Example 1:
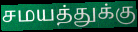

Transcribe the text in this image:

சமயத்துக்கு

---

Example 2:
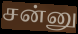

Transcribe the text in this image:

சன்னு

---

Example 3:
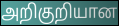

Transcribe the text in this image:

அறிகுறியான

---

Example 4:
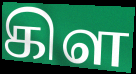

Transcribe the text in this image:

கிள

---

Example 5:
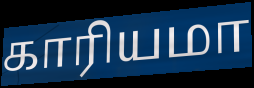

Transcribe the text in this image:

காரியமா